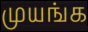
முயங்க